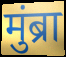
मुंब्रा